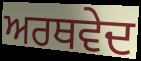
ਅਰਥਵੇਦ